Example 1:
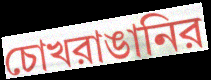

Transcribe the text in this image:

চোখরাঙানির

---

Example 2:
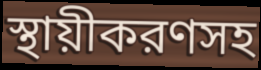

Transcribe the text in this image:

স্থায়ীকরণসহ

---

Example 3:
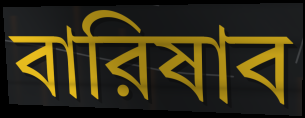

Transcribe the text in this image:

বারিষাব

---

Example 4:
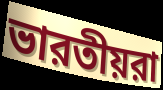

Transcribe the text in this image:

ভারতীয়রা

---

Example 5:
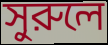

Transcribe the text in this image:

সুরুলে